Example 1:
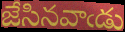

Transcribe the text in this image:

జేసినవాఁడు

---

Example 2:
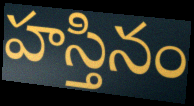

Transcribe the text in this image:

హస్తినం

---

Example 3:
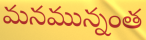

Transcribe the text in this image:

మనమున్నంత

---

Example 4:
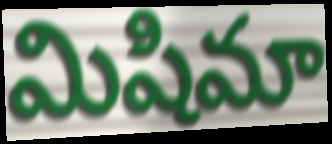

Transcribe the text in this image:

మిషిమా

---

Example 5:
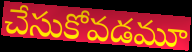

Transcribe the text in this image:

చేసుకోవడమూ